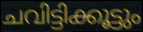
ചവിട്ടിക്കൂട്ടും